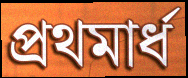
প্রথমার্ধ